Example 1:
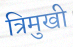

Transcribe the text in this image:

त्रिमुखी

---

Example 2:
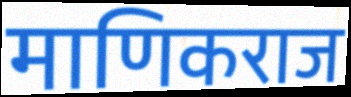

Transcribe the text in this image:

माणिकराज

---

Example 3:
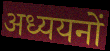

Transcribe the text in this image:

अध्ययनों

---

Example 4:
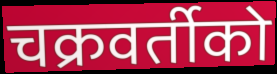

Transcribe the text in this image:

चक्रवर्तीको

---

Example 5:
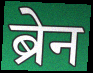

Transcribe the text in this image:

ब्रेन